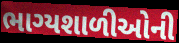
ભાગ્યશાળીઓની